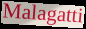
Malagatti